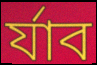
র্যাব